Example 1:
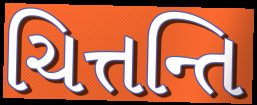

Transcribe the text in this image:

ચિત્તન્તિ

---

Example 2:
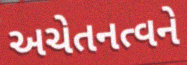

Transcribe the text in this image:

અચેતનત્વને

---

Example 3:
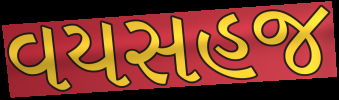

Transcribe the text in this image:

વયસહજ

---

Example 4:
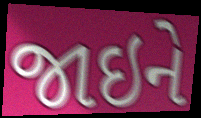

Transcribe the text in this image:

જાઇને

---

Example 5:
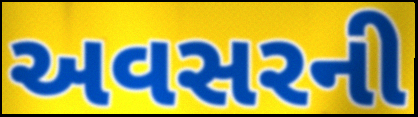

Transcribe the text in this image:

અવસરની